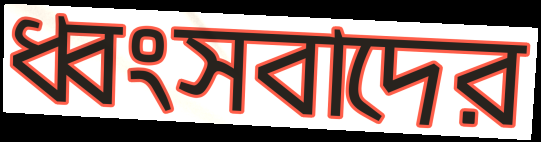
ধ্বংসবাদের